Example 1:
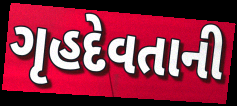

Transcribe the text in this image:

ગૃહદેવતાની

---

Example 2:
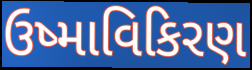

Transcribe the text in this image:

ઉષ્માવિકિરણ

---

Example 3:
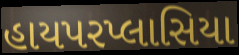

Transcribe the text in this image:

હાયપરપ્લાસિયા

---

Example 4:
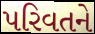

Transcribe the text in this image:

પરિવતને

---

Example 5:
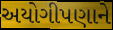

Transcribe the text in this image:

અયોગીપણાને